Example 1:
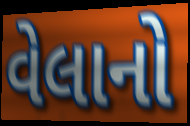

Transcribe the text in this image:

વેલાનો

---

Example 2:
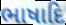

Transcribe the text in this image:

ભાષાદિ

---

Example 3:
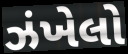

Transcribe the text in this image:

ઝંખેલો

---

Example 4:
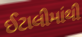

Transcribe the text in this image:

ઈટાલીમાંથી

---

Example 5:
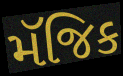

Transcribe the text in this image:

મૅજિક